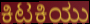
ಕಿಟಕಿಯು